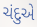
ચંદુએ